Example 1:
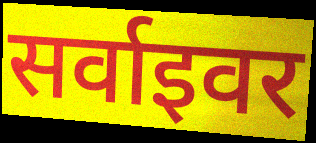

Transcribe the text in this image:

सर्वाइवर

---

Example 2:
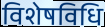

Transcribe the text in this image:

विशेषविधि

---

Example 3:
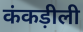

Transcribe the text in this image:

कंकड़ीली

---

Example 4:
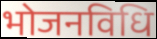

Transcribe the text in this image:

भोजनविधि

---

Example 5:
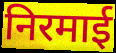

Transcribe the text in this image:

निरमाई